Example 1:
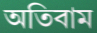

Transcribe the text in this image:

অতিবাম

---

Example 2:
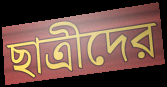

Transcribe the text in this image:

ছাত্রীদের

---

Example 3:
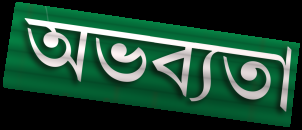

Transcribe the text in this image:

অভব্যতা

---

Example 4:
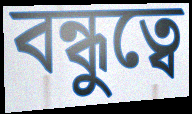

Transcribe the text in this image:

বন্ধুত্বে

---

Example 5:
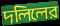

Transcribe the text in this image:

দলিলের